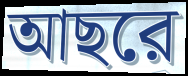
আছরে